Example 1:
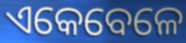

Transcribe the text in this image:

ଏକେବେଳେ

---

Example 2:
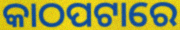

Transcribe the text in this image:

କାଠପଟାରେ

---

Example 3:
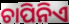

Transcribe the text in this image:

ଚାପିନିଏ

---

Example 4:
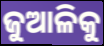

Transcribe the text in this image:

ଜୁଆଳିକୁ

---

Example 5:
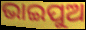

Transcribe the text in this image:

ଭାଇପୁଅ